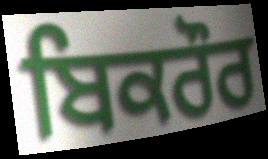
ਬਿਕਰੌਰ